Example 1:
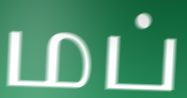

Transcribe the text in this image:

மப்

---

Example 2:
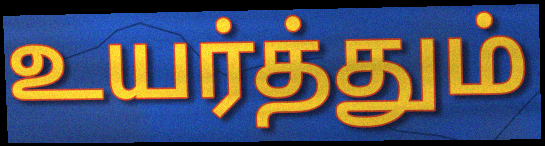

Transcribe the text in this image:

உயர்த்தும்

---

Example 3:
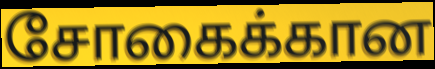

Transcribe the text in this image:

சோகைக்கான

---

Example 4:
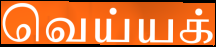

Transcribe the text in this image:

வெய்யக்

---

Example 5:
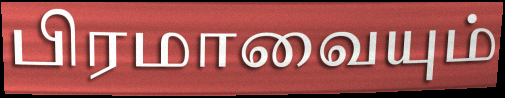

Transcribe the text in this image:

பிரமாவையும்